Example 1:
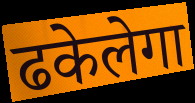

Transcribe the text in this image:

ढकेलेगा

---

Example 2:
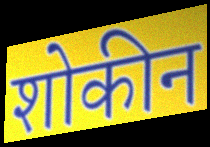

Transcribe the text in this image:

शोकीन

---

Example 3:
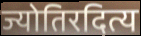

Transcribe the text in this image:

ज्योतिरदित्य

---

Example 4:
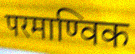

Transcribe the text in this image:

परमाण्विक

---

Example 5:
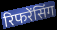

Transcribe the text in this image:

रिफरेंसिंग